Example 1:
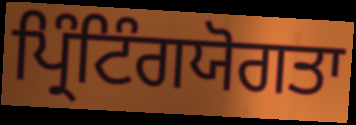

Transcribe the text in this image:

ਪ੍ਰਿੰਟਿੰਗਯੋਗਤਾ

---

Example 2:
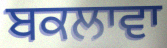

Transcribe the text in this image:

ਬਕਲਾਵਾ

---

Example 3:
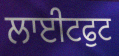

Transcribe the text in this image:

ਲਾਈਟਫੁਟ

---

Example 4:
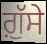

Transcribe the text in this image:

ਗ਼ੁੱਸੇ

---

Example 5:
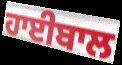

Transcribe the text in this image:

ਹਾਈਬਾਲ